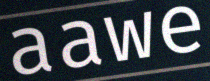
aawe